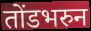
तोंडभरुन